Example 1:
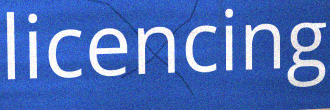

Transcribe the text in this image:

licencing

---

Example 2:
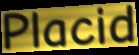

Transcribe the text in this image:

Placid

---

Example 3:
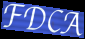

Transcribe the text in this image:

FDCA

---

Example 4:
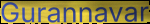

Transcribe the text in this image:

Gurannavar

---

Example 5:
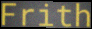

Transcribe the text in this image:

Frith